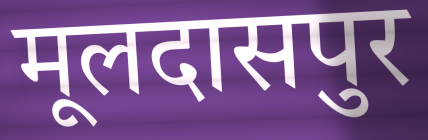
मूलदासपुर